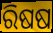
ରିଷଷ